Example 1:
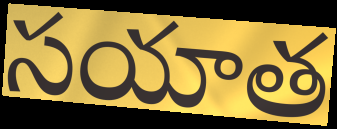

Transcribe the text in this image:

సయాత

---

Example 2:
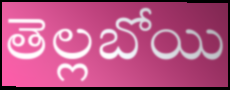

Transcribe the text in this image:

తెల్లబోయి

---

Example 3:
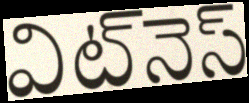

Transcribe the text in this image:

విట్‌నెస్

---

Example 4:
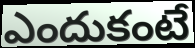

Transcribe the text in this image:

ఎందుకంటే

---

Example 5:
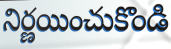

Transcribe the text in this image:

నిర్ణయించుకొండి